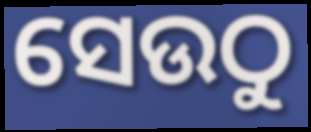
ସେଉଠୁ